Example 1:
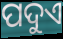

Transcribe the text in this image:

ପଦୁଏ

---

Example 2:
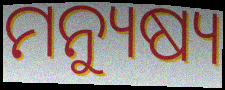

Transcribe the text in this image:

ମନ୍ୟୁଷ୍ୟ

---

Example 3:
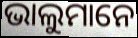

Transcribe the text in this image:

ଭାଲୁମାନେ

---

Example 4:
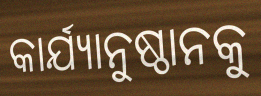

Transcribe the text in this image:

କାର୍ଯ୍ୟାନୁଷ୍ଠାନକୁ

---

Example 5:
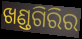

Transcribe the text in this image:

ଖଣ୍ଡଗିରିର